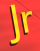
Jr